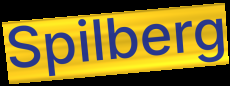
Spilberg